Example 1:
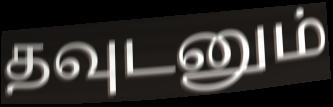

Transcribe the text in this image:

தவுடனும்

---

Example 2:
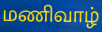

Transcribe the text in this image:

மணிவாழ்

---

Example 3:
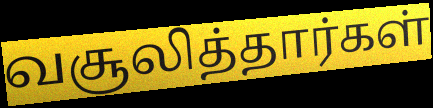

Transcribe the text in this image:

வசூலித்தார்கள்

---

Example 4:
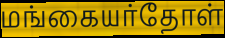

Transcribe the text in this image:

மங்கையர்தோள்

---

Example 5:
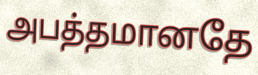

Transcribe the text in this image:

அபத்தமானதே